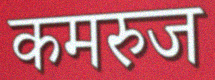
कमरुज